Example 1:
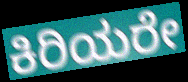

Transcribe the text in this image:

ಕಿರಿಯರೇ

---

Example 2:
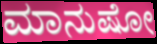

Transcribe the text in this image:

ಮಾನುಷೋ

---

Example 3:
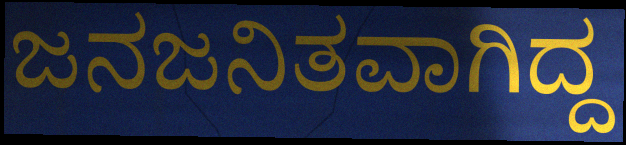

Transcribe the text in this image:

ಜನಜನಿತವಾಗಿದ್ದ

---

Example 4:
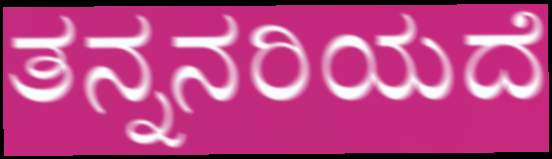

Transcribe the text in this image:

ತನ್ನನರಿಯದೆ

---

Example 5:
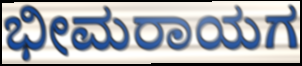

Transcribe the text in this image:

ಭೀಮರಾಯಗ